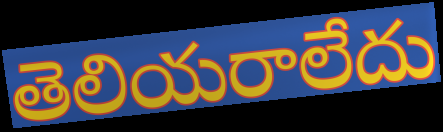
తెలియరాలేదు